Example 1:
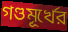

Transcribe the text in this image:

গণ্ডমূর্খের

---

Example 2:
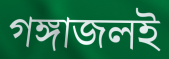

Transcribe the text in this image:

গঙ্গাজলই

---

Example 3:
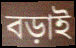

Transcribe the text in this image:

বড়াই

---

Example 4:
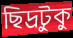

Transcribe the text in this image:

ছিদ্রটুকু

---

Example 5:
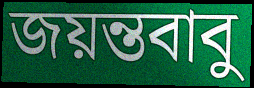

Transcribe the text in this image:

জয়ন্তবাবু